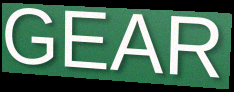
GEAR